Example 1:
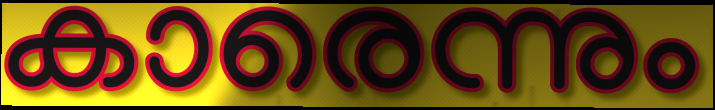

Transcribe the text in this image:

കാരെന്നും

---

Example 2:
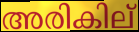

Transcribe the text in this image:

അരികില്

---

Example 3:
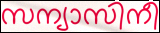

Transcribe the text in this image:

സന്യാസിനീ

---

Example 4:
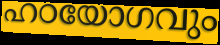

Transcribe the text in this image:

ഹഠയോഗവും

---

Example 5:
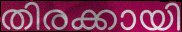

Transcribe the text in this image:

തിരക്കായി